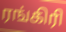
ரங்கிரி